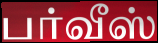
பர்வீஸ்